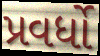
પ્રવર્ધો